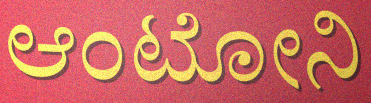
ಆಂಟೋನಿ